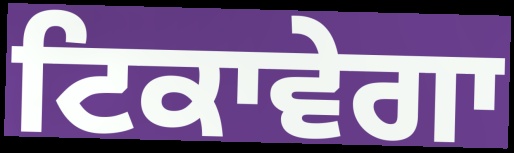
ਟਿਕਾਵੇਗਾ